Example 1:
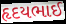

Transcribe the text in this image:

હૃદયભાઈ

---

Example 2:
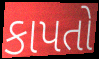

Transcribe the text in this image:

કાપતો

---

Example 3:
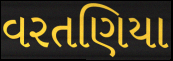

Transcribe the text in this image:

વરતણિયા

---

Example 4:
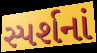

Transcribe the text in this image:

સ્પર્શનાં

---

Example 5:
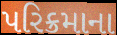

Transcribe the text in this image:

પરિક્રમાના